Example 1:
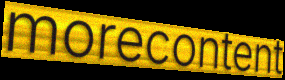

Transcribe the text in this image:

morecontent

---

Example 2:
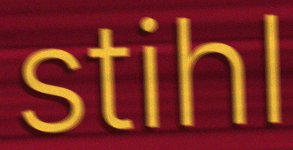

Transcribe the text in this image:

stihl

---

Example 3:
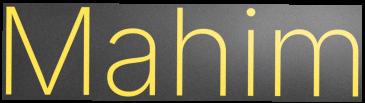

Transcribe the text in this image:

Mahim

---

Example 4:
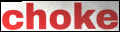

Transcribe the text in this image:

choke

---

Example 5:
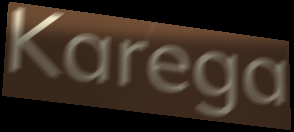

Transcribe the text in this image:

Karega